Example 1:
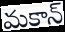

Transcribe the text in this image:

మకాన్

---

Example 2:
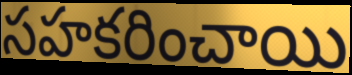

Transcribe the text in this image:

సహకరించాయి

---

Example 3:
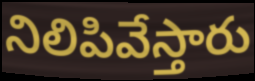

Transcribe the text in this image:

నిలిపివేస్తారు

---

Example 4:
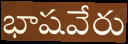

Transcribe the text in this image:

భాషవేరు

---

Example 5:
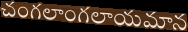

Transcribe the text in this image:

చంగలాంగలాయమాన